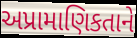
અપ્રામાણિકતાને